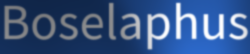
Boselaphus